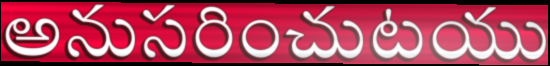
అనుసరించుటయు